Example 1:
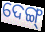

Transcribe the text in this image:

ଦେଙ୍ଗ୍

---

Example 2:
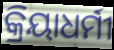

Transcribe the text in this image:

କ୍ରିୟାଧର୍ମୀ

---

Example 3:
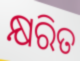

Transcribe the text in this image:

କ୍ଷରିତ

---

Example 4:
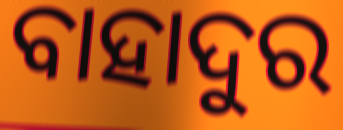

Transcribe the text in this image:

ବାହାଦୁର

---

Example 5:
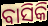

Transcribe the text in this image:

ବାସିକି